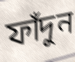
ফাঁদুন